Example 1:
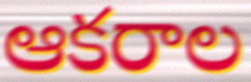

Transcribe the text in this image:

ఆకరాల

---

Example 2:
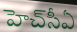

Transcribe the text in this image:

హెచ్‌సీఏ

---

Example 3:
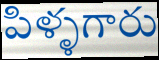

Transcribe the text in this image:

పిళ్ళగారు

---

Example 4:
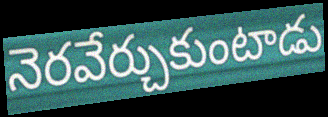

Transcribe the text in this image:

నెరవేర్చుకుంటాడు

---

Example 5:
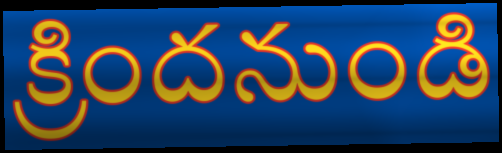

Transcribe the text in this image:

క్రిందనుండి